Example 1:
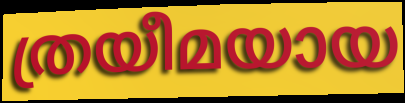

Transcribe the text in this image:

ത്രയീമയായ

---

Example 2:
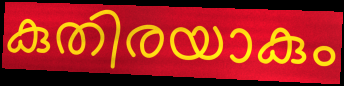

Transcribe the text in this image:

കുതിരയാകും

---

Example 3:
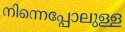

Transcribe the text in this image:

നിന്നെപ്പോലുള്ള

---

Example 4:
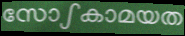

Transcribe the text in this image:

സോഽകാമയത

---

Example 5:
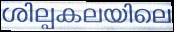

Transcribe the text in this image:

ശില്പകലയിലെ